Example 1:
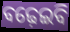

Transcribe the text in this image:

ବଢ଼େଇବି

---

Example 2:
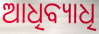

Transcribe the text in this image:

ଆଧିବ୍ୟାଧି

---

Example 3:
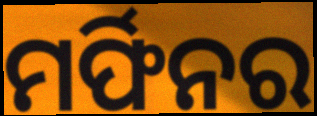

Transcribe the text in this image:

ମର୍ଫିନର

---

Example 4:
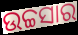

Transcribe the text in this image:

ଉଚ୍ଚସାର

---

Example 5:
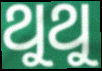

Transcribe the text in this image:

ଥୁଥୁ